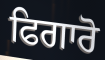
ਫਿਗਾਰੋ